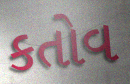
કતોવ